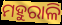
ମହୁରାଳି